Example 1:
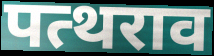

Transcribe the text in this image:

पत्थराव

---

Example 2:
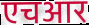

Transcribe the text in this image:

एचआर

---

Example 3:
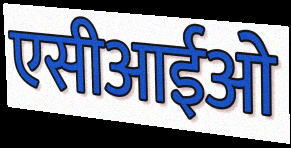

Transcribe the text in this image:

एसीआईओ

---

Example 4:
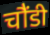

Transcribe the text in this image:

चौंडी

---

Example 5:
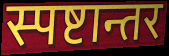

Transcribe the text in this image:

स्पष्टान्तर